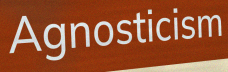
Agnosticism